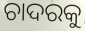
ଚାଦରକୁ